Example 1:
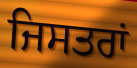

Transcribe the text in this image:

ਜਿਸਤਰਾਂ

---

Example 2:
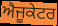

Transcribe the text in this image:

ਐਜੂਕੇਟਰ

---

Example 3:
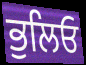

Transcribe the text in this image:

ਭੁਲਿਓ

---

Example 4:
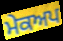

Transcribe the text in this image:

ਮੇਕਅਪ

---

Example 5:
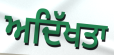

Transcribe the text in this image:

ਅਦਿੱਖਤਾ